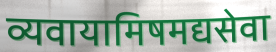
व्यवायामिषमद्यसेवा